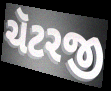
ચૅટરજી